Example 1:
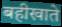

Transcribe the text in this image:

बहीखाते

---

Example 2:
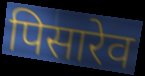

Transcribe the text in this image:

पिसारेव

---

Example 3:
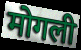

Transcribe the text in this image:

मोगली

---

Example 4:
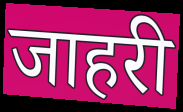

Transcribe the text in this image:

जाहरी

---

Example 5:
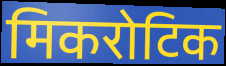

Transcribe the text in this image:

मिकरोटिक